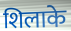
शिलाके